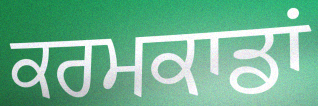
ਕਰਮਕਾਡਾਂ